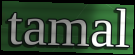
tamal